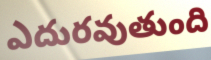
ఎదురవుతుంది